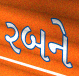
રબને